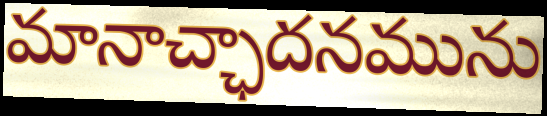
మానాచ్ఛాదనమును